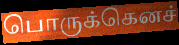
பொருக்கெனச்